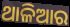
ଥାଳିଆର